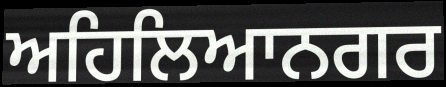
ਅਹਿਲਿਆਨਗਰ